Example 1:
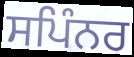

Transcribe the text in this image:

ਸਪਿੰਨਰ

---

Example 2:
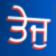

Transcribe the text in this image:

ਤੇਜੁ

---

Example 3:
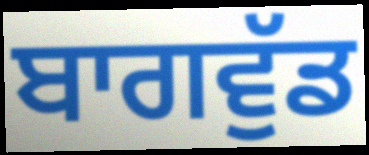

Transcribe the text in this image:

ਬਾਗਵੁੱਡ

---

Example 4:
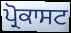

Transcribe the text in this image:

ਪ੍ਰੋਕਾਸਟ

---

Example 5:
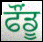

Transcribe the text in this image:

ਫੌਂਡੂ